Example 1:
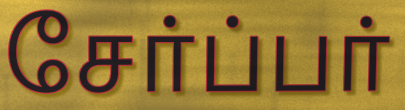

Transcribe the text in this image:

சேர்ப்பர்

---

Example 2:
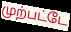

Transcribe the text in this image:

முற்பட்டே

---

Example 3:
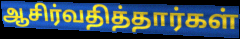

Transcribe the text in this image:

ஆசிர்வதித்தார்கள்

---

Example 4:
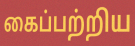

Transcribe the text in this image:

கைப்பற்றிய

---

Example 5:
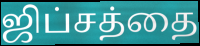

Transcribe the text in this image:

ஜிப்சத்தை